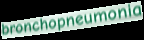
bronchopneumonia